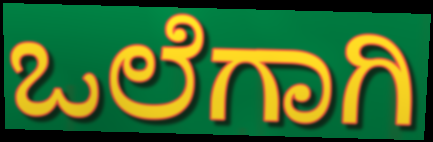
ಒಲೆಗಾಗಿ